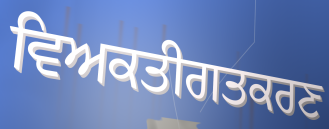
ਵਿਅਕਤੀਗਤਕਰਣ